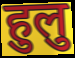
हुलु